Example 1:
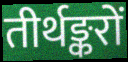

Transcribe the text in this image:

तीर्थङ्करों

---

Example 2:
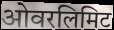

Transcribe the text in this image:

ओवरलिमिट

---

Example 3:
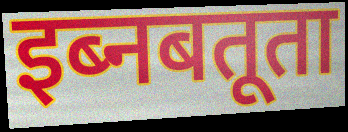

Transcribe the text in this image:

इब्नबतूता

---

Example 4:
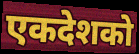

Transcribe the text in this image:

एकदेशको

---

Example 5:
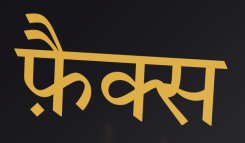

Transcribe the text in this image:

फ़ैक्स